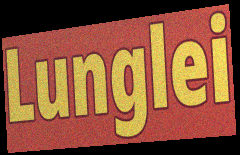
Lunglei